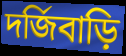
দর্জিবাড়ি